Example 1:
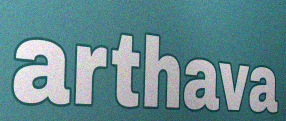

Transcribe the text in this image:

arthava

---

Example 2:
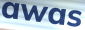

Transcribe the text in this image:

awas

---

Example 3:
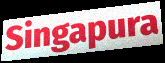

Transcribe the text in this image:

Singapura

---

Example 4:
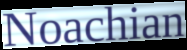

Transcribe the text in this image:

Noachian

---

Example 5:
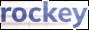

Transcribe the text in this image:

rockey